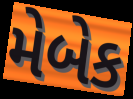
મેબેક